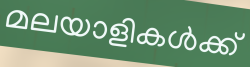
മലയാളികൾക്ക്